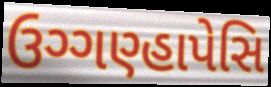
ઉગ્ગણ્હાપેસિ